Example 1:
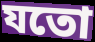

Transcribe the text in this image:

যতো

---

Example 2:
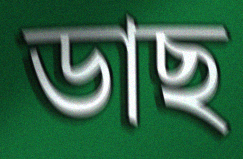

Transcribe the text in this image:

ডাছ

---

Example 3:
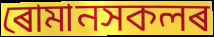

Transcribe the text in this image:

ৰোমানসকলৰ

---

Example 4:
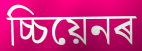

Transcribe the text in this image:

চ্চিয়েনৰ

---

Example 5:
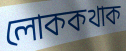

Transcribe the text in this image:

লোককথাক